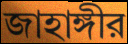
জাহাঙ্গীর